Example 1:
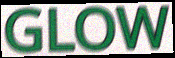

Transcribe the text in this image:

GLOW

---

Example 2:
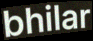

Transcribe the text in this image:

bhilar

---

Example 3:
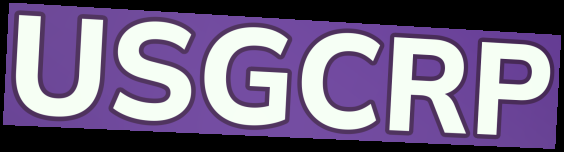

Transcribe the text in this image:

USGCRP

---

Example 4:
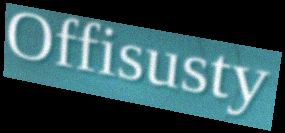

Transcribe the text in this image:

Offisusty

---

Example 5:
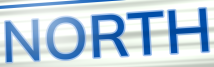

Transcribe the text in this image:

NORTH